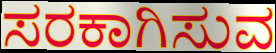
ಸರಕಾಗಿಸುವ